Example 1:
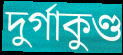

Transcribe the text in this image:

দুর্গাকুণ্ড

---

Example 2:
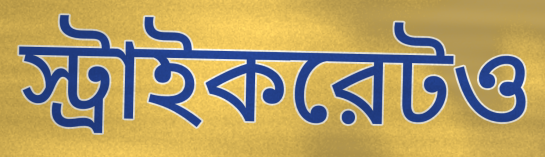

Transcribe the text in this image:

স্ট্রাইকরেটও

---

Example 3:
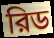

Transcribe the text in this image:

রিড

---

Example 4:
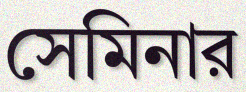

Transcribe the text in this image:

সেমিনার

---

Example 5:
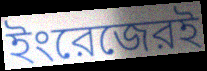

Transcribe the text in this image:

ইংরেজেরই